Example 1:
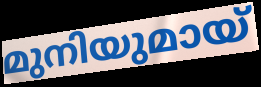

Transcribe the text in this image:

മുനിയുമായ്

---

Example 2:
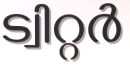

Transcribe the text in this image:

ട്വിറ്റർ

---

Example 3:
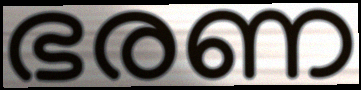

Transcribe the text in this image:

ഭരണ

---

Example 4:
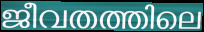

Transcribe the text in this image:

ജീവതത്തിലെ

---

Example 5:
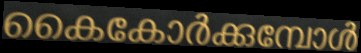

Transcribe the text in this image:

കൈകോർക്കുമ്പോൾ